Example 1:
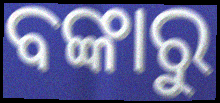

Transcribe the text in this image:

ବଙ୍କାରୁ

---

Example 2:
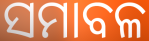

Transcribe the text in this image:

ସମାବଳ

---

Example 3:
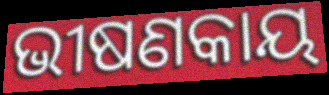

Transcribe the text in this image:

ଭୀଷଣକାୟ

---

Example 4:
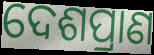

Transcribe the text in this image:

ଦେଶପ୍ରାଣ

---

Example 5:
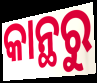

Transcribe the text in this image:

କାନ୍ଥରୁ